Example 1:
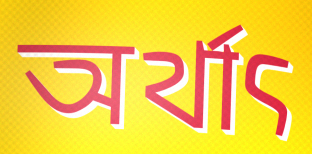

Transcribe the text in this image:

অর্থাৎ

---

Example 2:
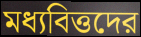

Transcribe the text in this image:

মধ্যবিত্তদের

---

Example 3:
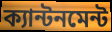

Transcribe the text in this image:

ক্যান্টনমেন্ট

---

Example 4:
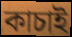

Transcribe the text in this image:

কাচাই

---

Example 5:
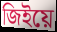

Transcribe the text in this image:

জিইয়ে